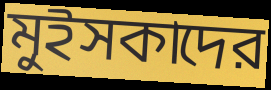
মুইসকাদের